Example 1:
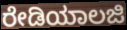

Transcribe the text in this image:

ರೇಡಿಯಾಲಜಿ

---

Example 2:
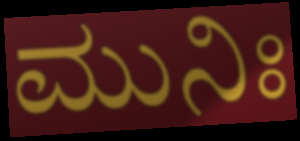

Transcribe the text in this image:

ಮುನಿಃ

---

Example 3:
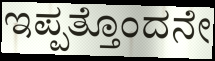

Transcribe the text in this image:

ಇಪ್ಪತ್ತೊಂದನೇ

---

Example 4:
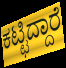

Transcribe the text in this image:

ಕಟ್ಟಿದ್ದಾರೆ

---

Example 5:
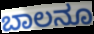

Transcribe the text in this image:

ಬಾಲನೂ